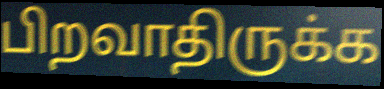
பிறவாதிருக்க